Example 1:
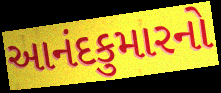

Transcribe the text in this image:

આનંદકુમારનો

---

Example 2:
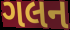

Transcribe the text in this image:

ગલન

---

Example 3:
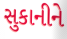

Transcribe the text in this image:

સુકાનીને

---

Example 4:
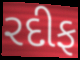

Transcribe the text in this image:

રદીફ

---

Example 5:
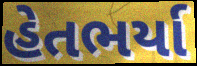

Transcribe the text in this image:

હેતભર્યા